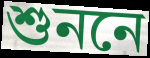
শুননে